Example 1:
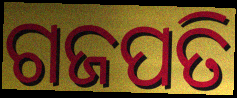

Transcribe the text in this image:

ଗଜପତି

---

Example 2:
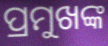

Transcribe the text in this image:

ପ୍ରମୁଖଙ୍କ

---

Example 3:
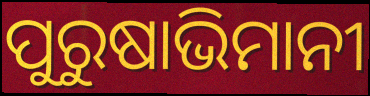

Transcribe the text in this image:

ପୁରୁଷାଭିମାନୀ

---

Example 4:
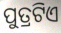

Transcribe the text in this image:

ପୁତ୍ରଟିଏ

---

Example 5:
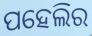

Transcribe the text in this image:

ପହେଲିର